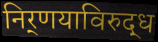
निर्णयाविरुद्ध